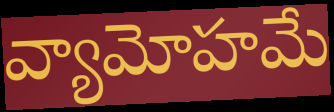
వ్యామోహమే